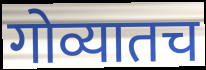
गोव्यातच